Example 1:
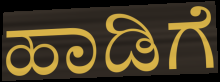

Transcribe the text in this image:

ಹಾಡಿಗೆ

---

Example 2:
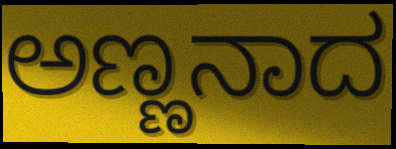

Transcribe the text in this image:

ಅಣ್ಣನಾದ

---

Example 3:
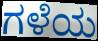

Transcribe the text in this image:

ಗಳೆಯ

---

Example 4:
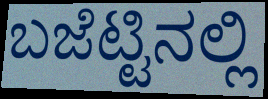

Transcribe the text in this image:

ಬಜೆಟ್ಟಿನಲ್ಲಿ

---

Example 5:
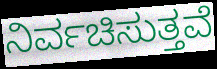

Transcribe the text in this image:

ನಿರ್ವಚಿಸುತ್ತವೆ